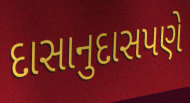
દાસાનુદાસપણે